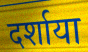
दर्शाया